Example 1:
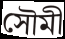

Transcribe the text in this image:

সৌমী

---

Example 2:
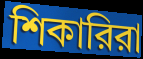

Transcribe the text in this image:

শিকারিরা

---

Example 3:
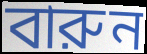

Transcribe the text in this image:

বারুন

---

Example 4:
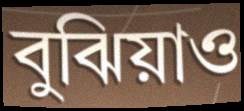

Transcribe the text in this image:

বুঝিয়াও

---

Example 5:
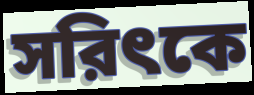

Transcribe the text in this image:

সরিৎকে